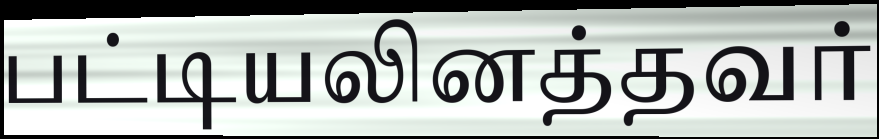
பட்டியலினத்தவர்